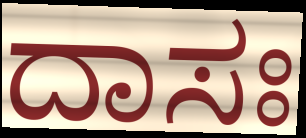
ದಾಸಃ